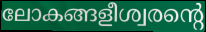
ലോകങ്ങളീശ്വരന്റെ